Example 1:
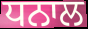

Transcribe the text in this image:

ਧਨਾਲ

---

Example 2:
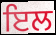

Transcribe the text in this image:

ਇਲ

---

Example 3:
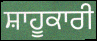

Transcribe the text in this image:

ਸ਼ਾਹੂਕਾਰੀ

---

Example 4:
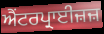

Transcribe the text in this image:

ਐਂਟਰਪ੍ਰਾਈਜ਼ਜ਼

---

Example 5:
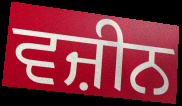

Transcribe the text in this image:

ਵਜ਼ੀਨ